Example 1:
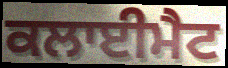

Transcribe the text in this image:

ਕਲਾਈਮੈਟ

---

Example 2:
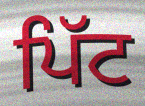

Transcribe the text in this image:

ਪਿੱਟ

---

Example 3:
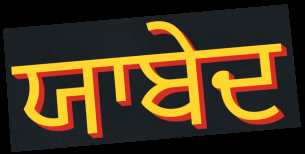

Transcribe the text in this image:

ਯਾਬੇਦ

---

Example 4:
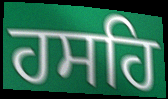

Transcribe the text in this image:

ਹਸਹਿ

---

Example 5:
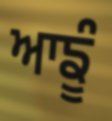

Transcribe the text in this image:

ਆਙੂੰ